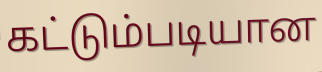
கட்டும்படியான